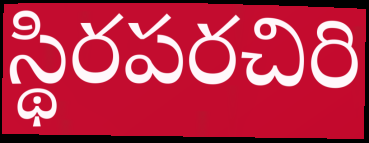
స్థిరపరచిరి